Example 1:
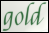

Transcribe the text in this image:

gold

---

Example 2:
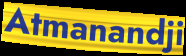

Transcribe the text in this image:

Atmanandji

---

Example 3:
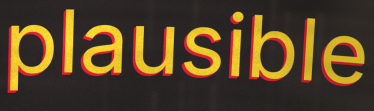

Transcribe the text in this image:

plausible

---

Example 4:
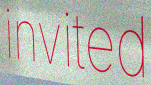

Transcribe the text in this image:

invited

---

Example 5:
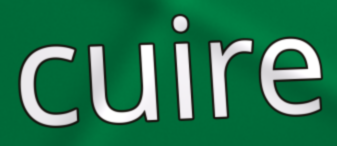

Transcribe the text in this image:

cuire